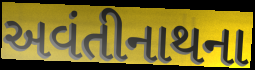
અવંતીનાથના